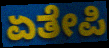
ಏತೇಪಿ